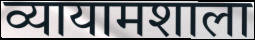
व्यायामशाला